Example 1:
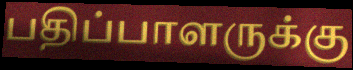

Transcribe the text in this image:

பதிப்பாளருக்கு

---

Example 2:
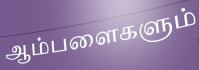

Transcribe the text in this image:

ஆம்பளைகளும்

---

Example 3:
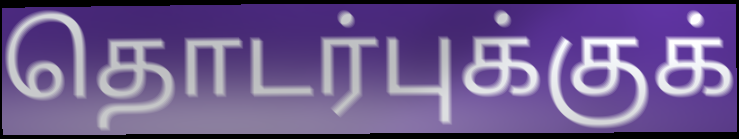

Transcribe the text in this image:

தொடர்புக்குக்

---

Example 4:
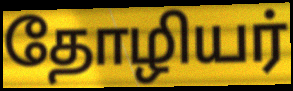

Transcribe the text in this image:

தோழியர்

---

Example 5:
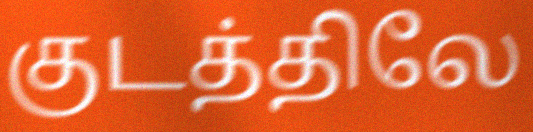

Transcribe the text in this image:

குடத்திலே